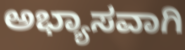
ಅಭ್ಯಾಸವಾಗಿ